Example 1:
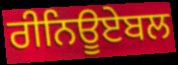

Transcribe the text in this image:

ਰੀਨਿਊਏਬਲ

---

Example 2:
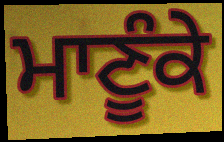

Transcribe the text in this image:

ਮਾਣੂੰਕੇ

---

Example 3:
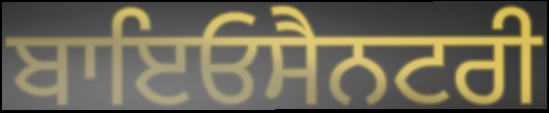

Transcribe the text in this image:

ਬਾਇਓਸੈਨਟਰੀ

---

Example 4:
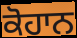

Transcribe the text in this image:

ਕੋਹਾਨ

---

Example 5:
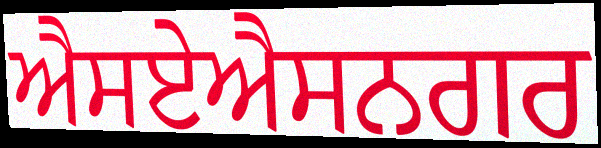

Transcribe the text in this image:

ਐਸਏਐਸਨਗਰ